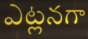
ఎట్లనగా